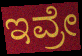
ಇವ್ರೇ